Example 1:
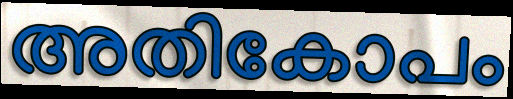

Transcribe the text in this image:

അതികോപം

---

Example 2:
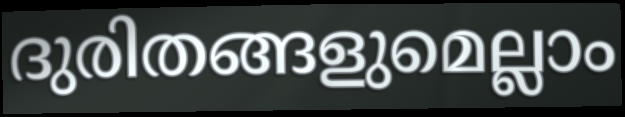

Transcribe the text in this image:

ദുരിതങ്ങളുമെല്ലാം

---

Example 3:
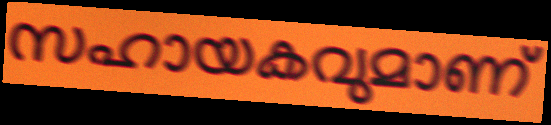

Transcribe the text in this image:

സഹായകവുമാണ്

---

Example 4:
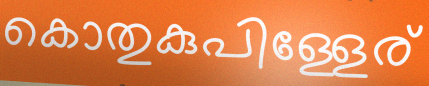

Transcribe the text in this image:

കൊതുകുപിള്ളേര്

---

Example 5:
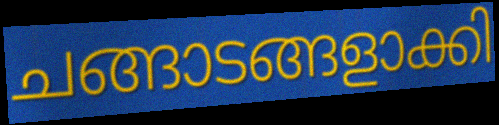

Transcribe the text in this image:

ചങ്ങാടങ്ങളാക്കി